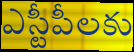
ఎస్టీపీలకు